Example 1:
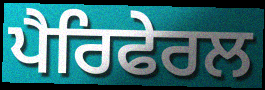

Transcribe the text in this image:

ਪੈਰਿਫੇਰਲ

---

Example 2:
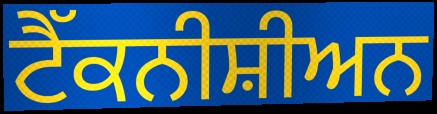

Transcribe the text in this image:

ਟੈੱਕਨੀਸ਼ੀਅਨ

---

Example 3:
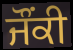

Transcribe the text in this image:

ਜੌਂਕੀ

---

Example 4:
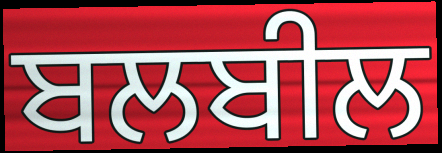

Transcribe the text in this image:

ਬਲਬੀਲ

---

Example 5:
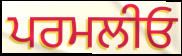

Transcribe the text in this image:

ਪਰਮਲੀਓ